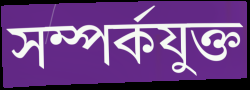
সম্পর্কযুক্ত